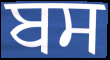
ਬਸ